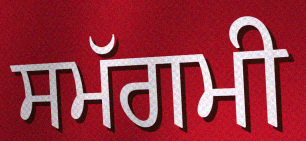
ਸਮੱਗਮੀ